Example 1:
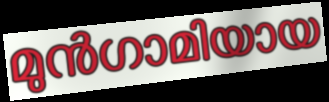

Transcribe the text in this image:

മുൻഗാമിയായ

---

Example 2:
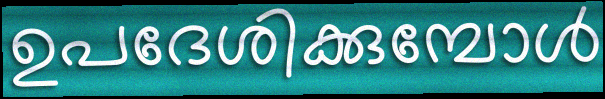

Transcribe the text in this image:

ഉപദേശിക്കുമ്പോൾ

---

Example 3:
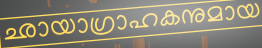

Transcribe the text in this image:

ഛായാഗ്രാഹകനുമായ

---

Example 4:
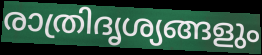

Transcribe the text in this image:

രാത്രിദൃശ്യങ്ങളും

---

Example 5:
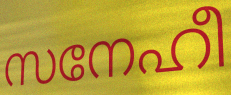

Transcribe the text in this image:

സനേഹീ